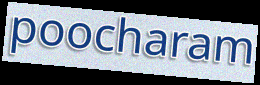
poocharam